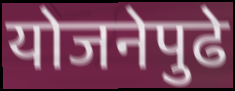
योजनेपुढे